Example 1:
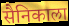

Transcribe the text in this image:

सैनिकाला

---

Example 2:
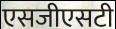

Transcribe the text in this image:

एसजीएसटी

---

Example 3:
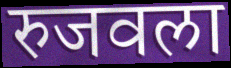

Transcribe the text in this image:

रुजवला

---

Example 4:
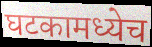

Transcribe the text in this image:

घटकामध्येच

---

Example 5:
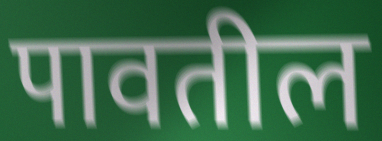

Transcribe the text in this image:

पावतील